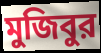
মুজিবুর